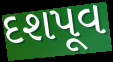
દશપૂવ